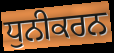
ਧੁਨੀਕਰਨ